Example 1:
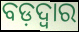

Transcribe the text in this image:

ବଡ଼ଦ୍ୱାର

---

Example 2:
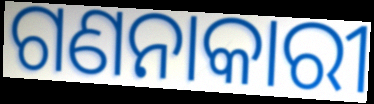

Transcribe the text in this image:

ଗଣନାକାରୀ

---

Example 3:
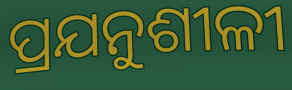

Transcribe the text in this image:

ପ୍ରଯନୁଶୀଳୀ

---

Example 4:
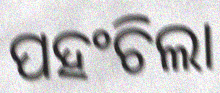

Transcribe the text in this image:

ପହଂଚିଲା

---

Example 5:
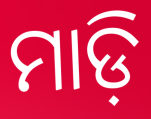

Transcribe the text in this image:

ମାଡ଼ି